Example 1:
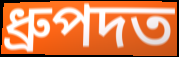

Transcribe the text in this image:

ধ্ৰুপদত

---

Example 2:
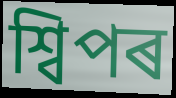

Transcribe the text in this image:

শ্বিপৰ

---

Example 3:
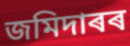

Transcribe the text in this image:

জমিদাৰৰ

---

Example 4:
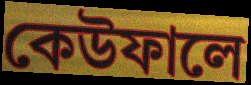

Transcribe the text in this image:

কেউফালে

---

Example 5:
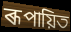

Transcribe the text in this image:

ৰূপায়িত